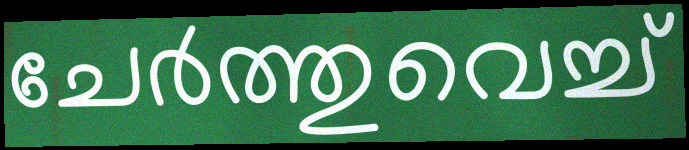
ചേർത്തുവെച്ച്